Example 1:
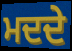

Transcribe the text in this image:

ਮਦਦੇ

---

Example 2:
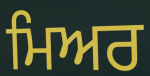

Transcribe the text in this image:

ਮਿਅਰ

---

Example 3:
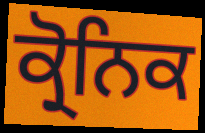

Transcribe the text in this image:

ਕ੍ਰੋਨਿਕ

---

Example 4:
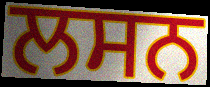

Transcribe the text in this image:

ਲਸਨ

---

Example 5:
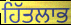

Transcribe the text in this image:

ਹਿੱਤਲਾਭ